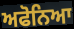
ਅਫੋਨਿਆ